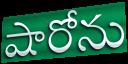
షారోను